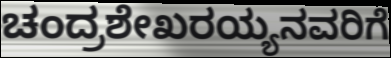
ಚಂದ್ರಶೇಖರಯ್ಯನವರಿಗೆ